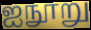
ஐநூறு